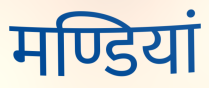
मण्डियां